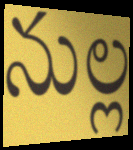
నుల్ల